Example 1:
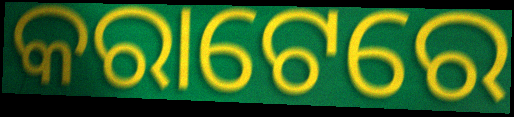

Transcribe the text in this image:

କରାଟେରେ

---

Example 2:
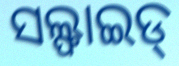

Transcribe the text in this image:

ସଲ୍ଫାଇଡ୍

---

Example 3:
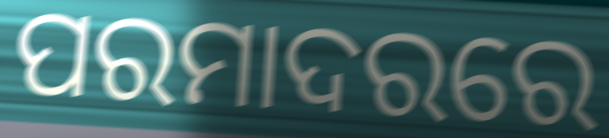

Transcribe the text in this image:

ପରମାଦରରେ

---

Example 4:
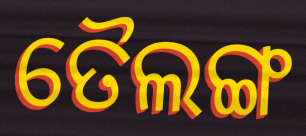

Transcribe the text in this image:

ତୈଲଙ୍ଗ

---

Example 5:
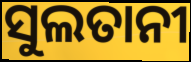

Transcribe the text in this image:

ସୁଲତାନୀ